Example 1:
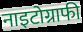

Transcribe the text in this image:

नाइटोग्राफी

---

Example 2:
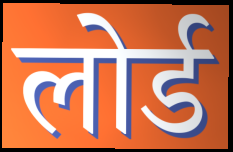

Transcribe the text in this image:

लोर्ड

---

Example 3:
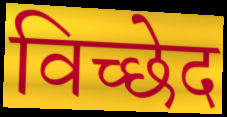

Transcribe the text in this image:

विच्छेद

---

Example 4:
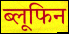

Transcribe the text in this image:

ब्लूफिन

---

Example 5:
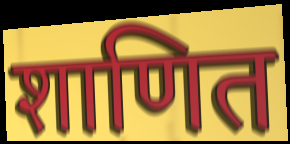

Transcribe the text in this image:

शाणित